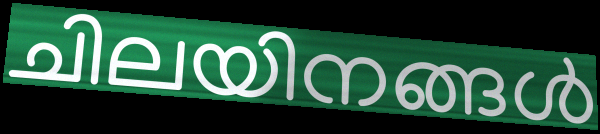
ചിലയിനങ്ങൾ